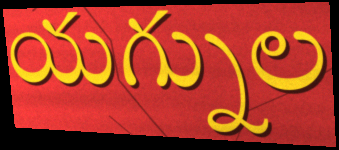
యగ్నుల